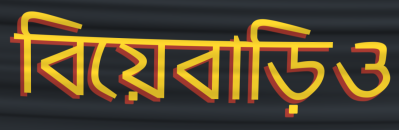
বিয়েবাড়িও